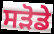
ਸੜੋਡੇ